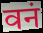
वनं